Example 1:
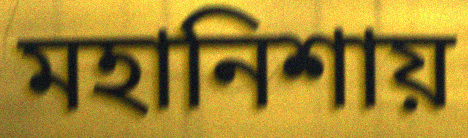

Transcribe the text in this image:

মহানিশায়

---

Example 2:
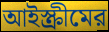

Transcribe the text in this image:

আইস্ক্রীমের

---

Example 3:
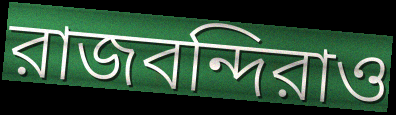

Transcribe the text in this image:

রাজবন্দিরাও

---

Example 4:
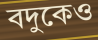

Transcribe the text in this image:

বদুকেও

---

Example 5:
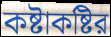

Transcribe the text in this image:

কষ্টাকষ্টির